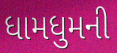
ધામધુમની